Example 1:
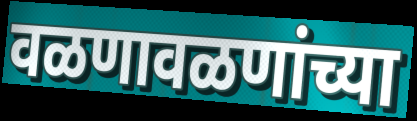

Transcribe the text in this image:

वळणावळणांच्या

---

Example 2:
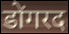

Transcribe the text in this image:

डोंगरद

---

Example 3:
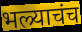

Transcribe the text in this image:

भल्याचंच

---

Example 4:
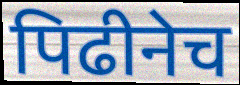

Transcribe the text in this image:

पिढीनेच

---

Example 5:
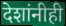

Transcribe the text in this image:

देशांनीही